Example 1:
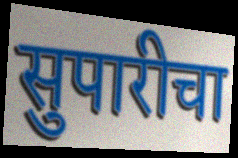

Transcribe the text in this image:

सुपारीचा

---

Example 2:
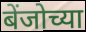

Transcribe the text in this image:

बेंजोच्या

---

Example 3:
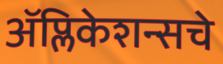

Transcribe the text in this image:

ॲप्लिकेशन्सचे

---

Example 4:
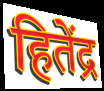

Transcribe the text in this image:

हितेंद्र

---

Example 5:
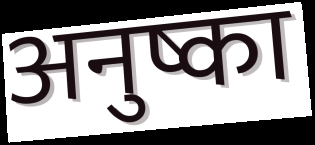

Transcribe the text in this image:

अनुष्का